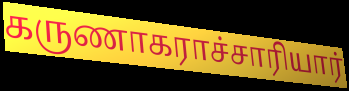
கருணாகராச்சாரியார்